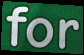
for